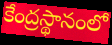
కేంద్రస్థానంలో